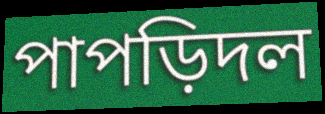
পাপড়িদল